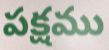
పక్షము